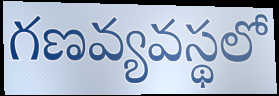
గణవ్యవస్థలో